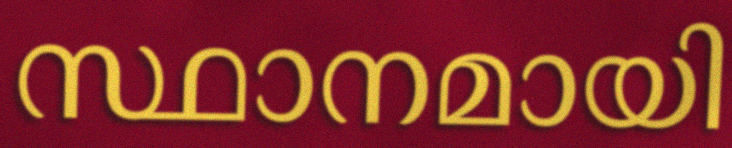
സ്ഥാനമായി